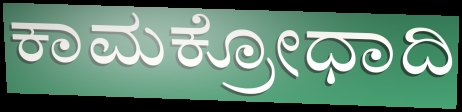
ಕಾಮಕ್ರೋಧಾದಿ